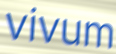
vivum